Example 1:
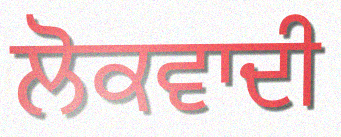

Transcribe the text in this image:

ਲੋਕਵਾਦੀ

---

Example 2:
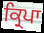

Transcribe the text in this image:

ਕ੍ਰਿਪਾ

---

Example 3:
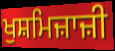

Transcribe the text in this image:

ਖੁਸ਼ਮਿਜ਼ਾਜ਼ੀ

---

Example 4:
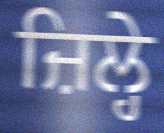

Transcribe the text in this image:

ਜ਼ਿਲ੍ਹੇ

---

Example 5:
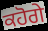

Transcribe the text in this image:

ਕਹੋਗੇ